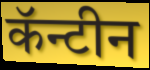
कॅन्टीन